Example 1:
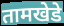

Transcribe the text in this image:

तामखेडे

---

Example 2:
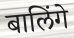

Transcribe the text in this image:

बालिंगे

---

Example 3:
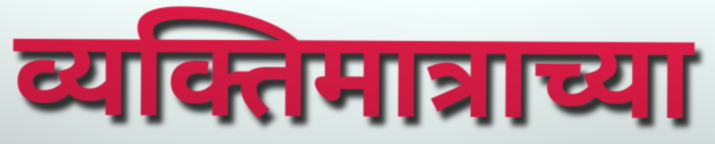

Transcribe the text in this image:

व्यक्तिमात्राच्या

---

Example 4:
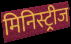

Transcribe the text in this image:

मिनिस्ट्रीज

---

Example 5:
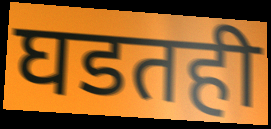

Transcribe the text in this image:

घडतही